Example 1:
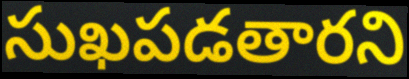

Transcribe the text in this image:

సుఖపడతారని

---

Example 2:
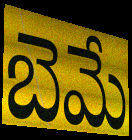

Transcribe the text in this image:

బెమే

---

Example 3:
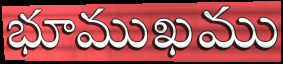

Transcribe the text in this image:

భూముఖము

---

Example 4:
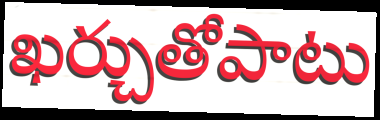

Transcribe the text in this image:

ఖర్చుతోపాటు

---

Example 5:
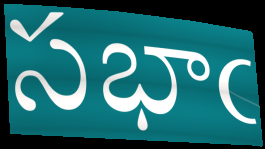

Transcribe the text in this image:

సభాఁ